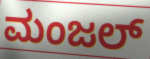
ಮಂಜಲ್